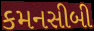
કમનસીબી